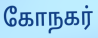
கோநகர்